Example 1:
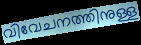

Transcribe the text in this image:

വിവേചനത്തിനുള്ള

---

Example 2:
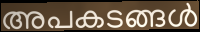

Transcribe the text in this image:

അപകടങ്ങൾ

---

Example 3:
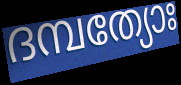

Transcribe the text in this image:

ദമ്പത്യോഃ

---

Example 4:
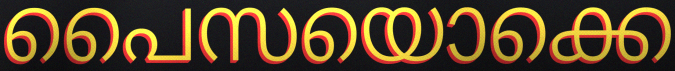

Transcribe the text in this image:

പൈസയൊക്കെ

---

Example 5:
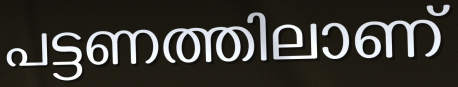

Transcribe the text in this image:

പട്ടണത്തിലാണ്